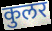
कुलर